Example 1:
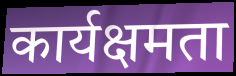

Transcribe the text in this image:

कार्यक्षमता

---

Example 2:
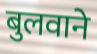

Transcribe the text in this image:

बुलवाने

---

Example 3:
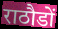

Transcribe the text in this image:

राठौडों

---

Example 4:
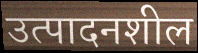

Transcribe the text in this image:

उत्पादनशील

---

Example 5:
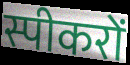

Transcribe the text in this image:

स्पीकरों